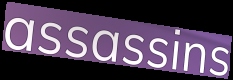
assassins